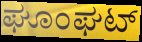
ಘೂಂಘಟ್